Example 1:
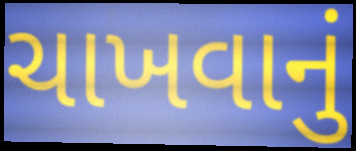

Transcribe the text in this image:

ચાખવાનું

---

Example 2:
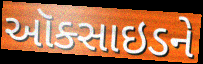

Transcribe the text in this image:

ઑક્સાઇડને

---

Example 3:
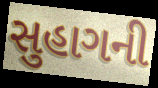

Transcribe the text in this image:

સુહાગની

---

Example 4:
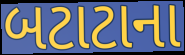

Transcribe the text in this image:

બટાટાના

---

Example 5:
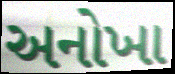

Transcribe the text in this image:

અનોખા